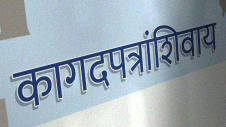
कागदपत्रांशिवाय